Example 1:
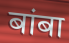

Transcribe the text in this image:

बांबा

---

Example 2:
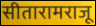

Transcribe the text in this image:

सीतारामराजू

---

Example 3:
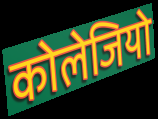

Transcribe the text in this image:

कोलेजियो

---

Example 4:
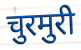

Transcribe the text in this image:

चुरमुरी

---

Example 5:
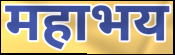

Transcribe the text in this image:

महाभय